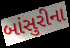
બાંસુરીના